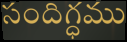
సందిగ్ధము